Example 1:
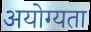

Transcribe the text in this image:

अयोग्यता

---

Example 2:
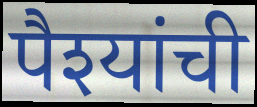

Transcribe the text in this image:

पैश्यांची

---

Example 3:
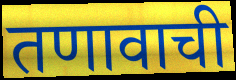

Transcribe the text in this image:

तणावाची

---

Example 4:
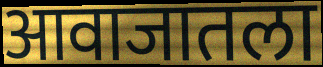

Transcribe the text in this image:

आवाजातला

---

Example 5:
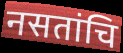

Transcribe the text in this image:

नसतांचि